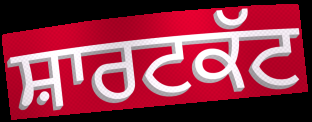
ਸ਼ਾਰਟਕੱਟ